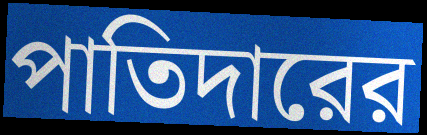
পাতিদারের